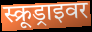
स्क्रूड्राइवर